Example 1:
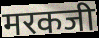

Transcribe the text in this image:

मरकजी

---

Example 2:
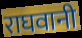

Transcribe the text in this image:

राघवानी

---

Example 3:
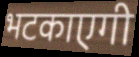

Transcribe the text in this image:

भटकाएगी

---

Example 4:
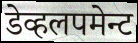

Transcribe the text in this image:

डेव्हलपमेन्ट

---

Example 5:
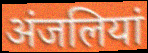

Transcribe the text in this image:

अंजलियां